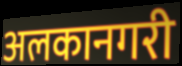
अलकानगरी